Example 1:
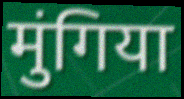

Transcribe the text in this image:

मुंगिया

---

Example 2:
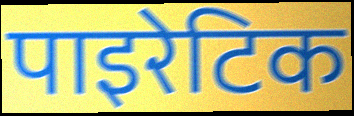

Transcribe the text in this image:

पाइरेटिक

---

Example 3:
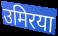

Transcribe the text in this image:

उमिरया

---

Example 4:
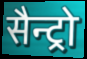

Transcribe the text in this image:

सैन्ट्रो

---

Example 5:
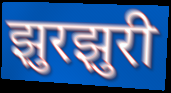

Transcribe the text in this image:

झुरझुरी